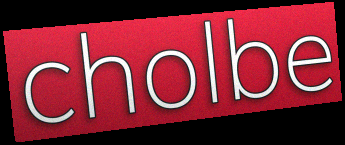
cholbe